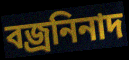
বজ্রনিনাদ